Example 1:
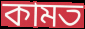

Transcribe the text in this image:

কামত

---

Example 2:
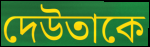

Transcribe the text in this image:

দেউতাকে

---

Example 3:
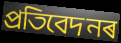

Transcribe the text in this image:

প্ৰতিবেদনৰ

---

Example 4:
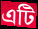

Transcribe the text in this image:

এটি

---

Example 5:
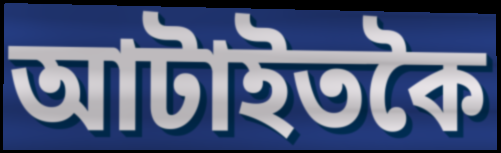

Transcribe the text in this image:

আটাইতকৈ